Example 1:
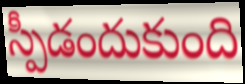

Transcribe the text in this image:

స్పీడందుకుంది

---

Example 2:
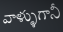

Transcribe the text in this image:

వాళ్ళుగానీ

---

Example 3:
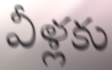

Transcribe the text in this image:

వీళ్లకు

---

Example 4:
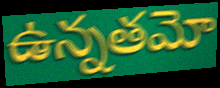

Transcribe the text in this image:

ఉన్నతమో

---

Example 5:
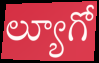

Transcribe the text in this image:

ల్యూగో